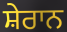
ਸ਼ੇਰਾਨ